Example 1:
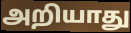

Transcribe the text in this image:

அறியாது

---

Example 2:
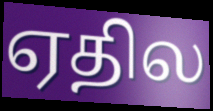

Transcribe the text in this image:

ஏதில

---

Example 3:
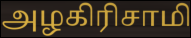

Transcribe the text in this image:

அழகிரிசாமி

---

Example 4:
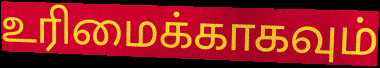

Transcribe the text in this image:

உரிமைக்காகவும்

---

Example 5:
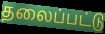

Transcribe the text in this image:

தலைப்பட்டு